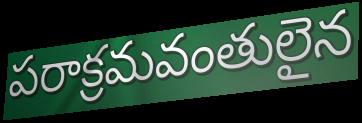
పరాక్రమవంతులైన